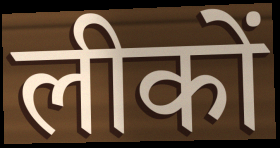
लीकों